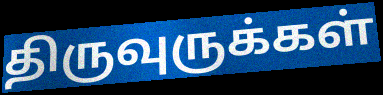
திருவுருக்கள்